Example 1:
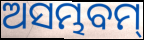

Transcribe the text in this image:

ଅସମ୍ଭବମ୍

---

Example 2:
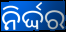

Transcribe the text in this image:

ନିର୍ଦ୍ଦର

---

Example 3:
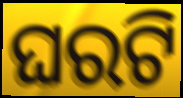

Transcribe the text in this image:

ଘରଟି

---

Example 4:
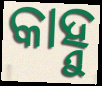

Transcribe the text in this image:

କାହ୍ନୁ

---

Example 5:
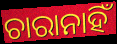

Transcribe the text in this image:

ଚାରାନାହିଁ